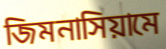
জিমনাসিয়ামে